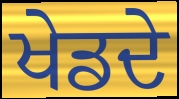
ਖੇਡਦੇ